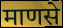
माणसे